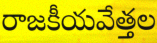
రాజకీయవేత్తల